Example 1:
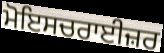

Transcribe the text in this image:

ਮੋਇਸਚਰਾਈਜ਼ਰ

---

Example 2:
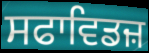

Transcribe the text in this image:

ਸਫਾਵਿਡਜ਼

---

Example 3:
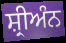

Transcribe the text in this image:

ਸ਼੍ਰੀਅੰਨ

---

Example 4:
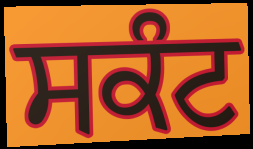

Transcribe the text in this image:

ਸਕੰਟ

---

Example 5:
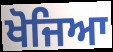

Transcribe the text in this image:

ਖੋਜਿਆ